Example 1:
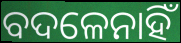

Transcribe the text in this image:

ବଦଳେନାହିଁ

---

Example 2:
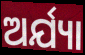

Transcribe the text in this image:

ଅର୍ଯ୍ୟା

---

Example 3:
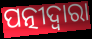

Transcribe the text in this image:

ପତ୍ନୀଦ୍ୱାରା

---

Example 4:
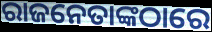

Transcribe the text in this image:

ରାଜନେତାଙ୍କଠାରେ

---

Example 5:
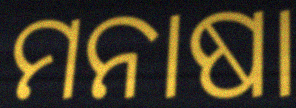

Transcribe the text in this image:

ମନାଷା